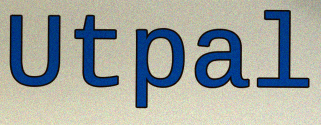
Utpal